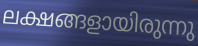
ലക്ഷങ്ങളായിരുന്നു